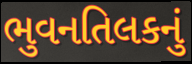
ભુવનતિલકનું